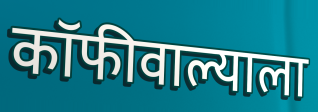
कॉफीवाल्याला